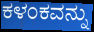
ಕಳಂಕವನ್ನು